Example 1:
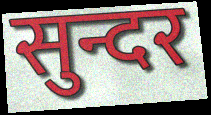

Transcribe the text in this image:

सुन्‍दर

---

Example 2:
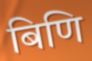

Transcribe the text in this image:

बिणि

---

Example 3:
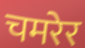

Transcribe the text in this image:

चमरेर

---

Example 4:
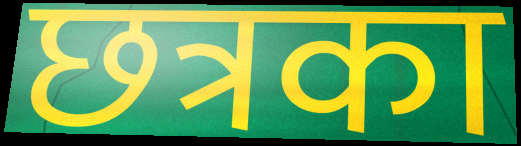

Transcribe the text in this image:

छत्रका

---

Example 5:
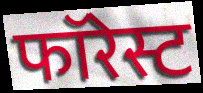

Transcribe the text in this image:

फॉरेस्‍ट